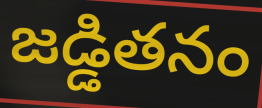
జడ్డితనం